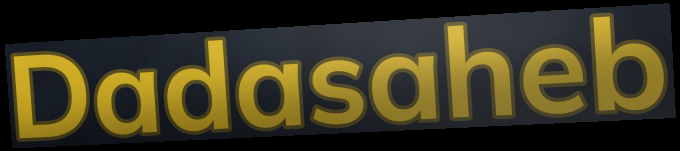
Dadasaheb